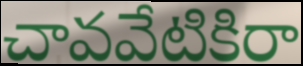
చావవేటికిరా